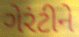
ગેરંટીને